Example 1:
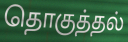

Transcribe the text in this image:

தொகுத்தல்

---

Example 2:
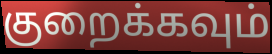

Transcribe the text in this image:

குறைக்கவும்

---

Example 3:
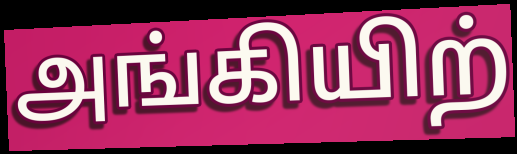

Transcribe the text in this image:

அங்கியிற்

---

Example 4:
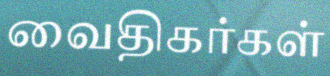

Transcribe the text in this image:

வைதிகர்கள்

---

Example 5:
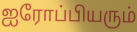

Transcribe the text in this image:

ஐரோப்பியரும்